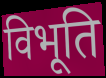
विभूति